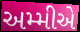
અમ્મીએ